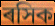
ৰসিক